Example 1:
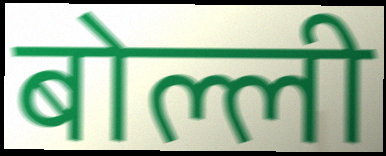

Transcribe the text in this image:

बोल्ली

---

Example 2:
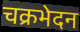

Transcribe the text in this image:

चक्रभेदन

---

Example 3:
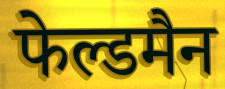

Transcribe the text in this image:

फेल्डमैन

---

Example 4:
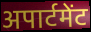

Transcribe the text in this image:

अपार्टमेंट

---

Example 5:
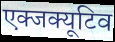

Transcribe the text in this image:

एक्जक्यूटिव